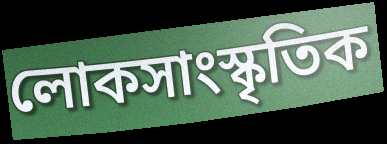
লোকসাংস্কৃতিক